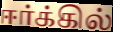
ஈர்க்கில்